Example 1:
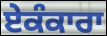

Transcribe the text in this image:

ਏਕੰਕਾਰਾ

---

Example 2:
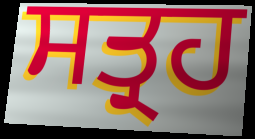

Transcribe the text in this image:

ਸਤ੍ਰਹ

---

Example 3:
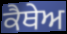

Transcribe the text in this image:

ਕੈਥੇਅ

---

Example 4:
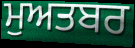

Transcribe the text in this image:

ਮੁਅਤਬਰ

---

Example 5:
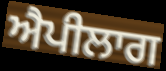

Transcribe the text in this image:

ਐਪੀਲਾਗ